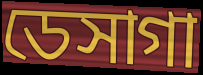
ডেসাগা